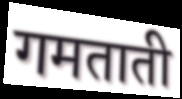
गमताती